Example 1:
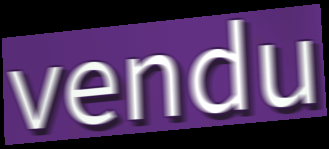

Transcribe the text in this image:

vendu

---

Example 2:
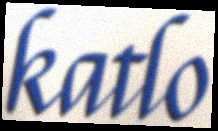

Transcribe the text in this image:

katlo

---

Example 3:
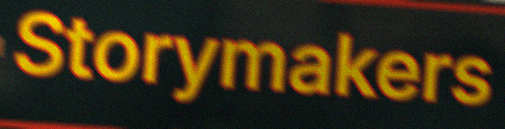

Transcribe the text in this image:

Storymakers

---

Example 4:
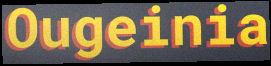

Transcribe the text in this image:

Ougeinia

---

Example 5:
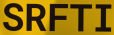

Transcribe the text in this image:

SRFTI